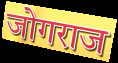
जोगराज